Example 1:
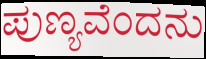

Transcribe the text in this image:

ಪುಣ್ಯವೆಂದನು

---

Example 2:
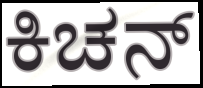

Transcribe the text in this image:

ಕಿಚನ್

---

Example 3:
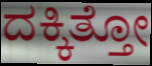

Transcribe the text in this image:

ದಕ್ಕಿತ್ತೋ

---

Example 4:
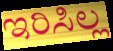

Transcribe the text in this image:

ಇರಿಸಿಲ್ಲ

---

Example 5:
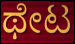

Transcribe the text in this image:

ಥೇಟ